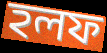
হলফ